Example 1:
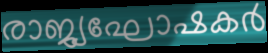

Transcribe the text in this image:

രാജ്യഘോഷകർ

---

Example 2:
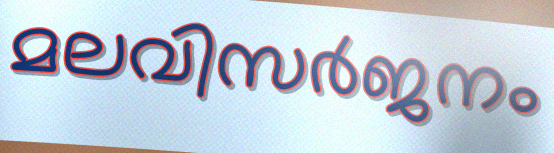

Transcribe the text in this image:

മലവിസർജനം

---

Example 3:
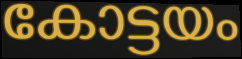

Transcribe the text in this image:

കോട്ടയം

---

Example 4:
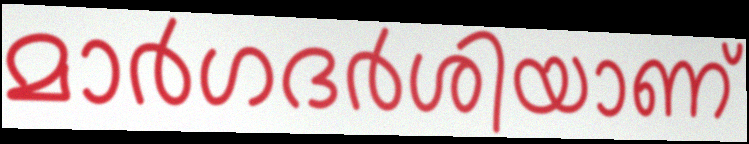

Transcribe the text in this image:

മാർഗദർശിയാണ്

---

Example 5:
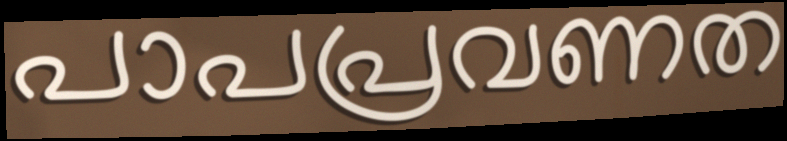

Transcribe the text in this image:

പാപപ്രവണത